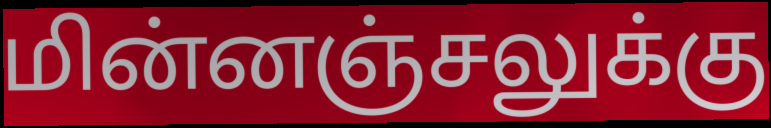
மின்னஞ்சலுக்கு